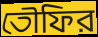
তৌফির